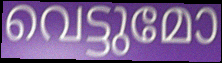
വെട്ടുമോ